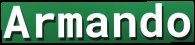
Armando